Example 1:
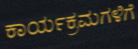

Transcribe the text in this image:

ಕಾರ್ಯಕ್ರಮಗಳಿಗೆ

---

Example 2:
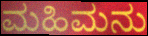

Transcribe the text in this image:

ಮಹಿಮನು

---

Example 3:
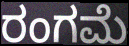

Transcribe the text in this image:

ರಂಗಮೆ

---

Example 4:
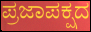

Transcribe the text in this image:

ಪ್ರಜಾಪಕ್ಷದ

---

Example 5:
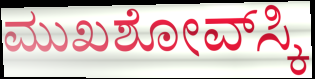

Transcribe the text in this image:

ಮುಖಶೋವ್‌ಸ್ಕಿ